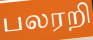
பலரறி